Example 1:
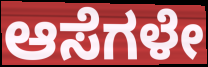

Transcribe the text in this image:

ಆಸೆಗಳೇ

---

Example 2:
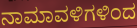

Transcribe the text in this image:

ನಾಮಾವಳಿಗಳಿಂದ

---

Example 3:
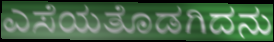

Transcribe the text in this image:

ಎಸೆಯತೊಡಗಿದನು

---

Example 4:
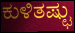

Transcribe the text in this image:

ಕುಳಿತಷ್ಟು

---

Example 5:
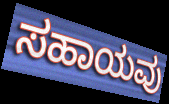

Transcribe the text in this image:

ಸಹಾಯವು